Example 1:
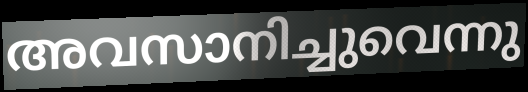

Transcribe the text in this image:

അവസാനിച്ചുവെന്നു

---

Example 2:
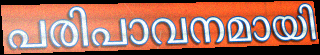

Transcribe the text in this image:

പരിപാവനമായി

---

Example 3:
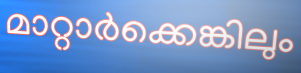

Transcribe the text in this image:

മാറ്റാർക്കെങ്കിലും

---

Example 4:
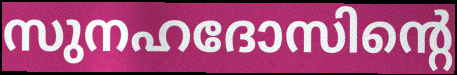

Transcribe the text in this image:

സുനഹദോസിന്റെ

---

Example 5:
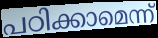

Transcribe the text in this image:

പഠിക്കാമെന്ന്